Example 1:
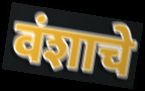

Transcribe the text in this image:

वंशाचे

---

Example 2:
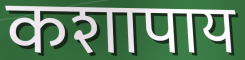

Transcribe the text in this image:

कशापाय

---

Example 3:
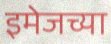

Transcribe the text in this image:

इमेजच्या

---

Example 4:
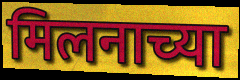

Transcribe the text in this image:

मिलनाच्या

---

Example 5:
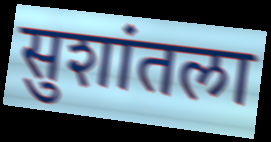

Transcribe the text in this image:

सुशांतला